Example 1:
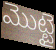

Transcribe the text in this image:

మొట్టై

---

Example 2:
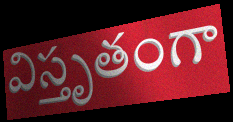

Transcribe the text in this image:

విస్తృతంగా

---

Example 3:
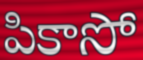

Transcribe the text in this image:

పికాసో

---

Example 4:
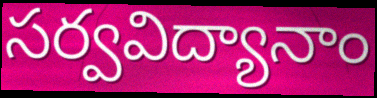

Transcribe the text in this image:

సర్వవిద్యానాం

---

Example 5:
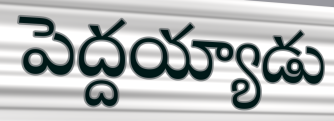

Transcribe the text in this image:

పెద్దయ్యాడు